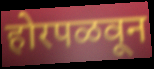
होरपळवून